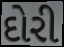
દોરી